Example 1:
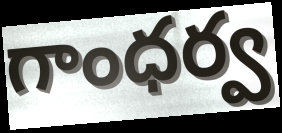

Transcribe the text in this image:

గాంధర్వ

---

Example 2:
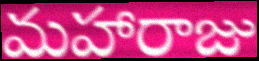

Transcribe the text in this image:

మహారాజు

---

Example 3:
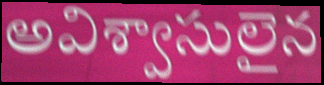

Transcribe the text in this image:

అవిశ్వాసులైన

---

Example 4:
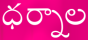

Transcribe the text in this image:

ధర్నాల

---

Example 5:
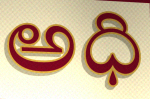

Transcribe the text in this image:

అధి